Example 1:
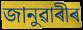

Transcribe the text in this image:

জানুৱাৰীৰ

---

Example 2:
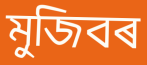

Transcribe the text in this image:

মুজিবৰ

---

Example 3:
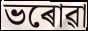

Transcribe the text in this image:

ভৰোৱা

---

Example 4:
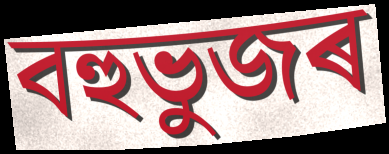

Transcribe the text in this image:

বহুভুজৰ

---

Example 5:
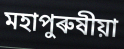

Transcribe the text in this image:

মহাপুৰুষীয়া